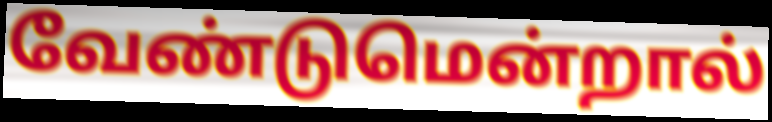
வேண்டுமென்றால்